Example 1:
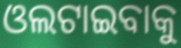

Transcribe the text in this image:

ଓଲଟାଇବାକୁ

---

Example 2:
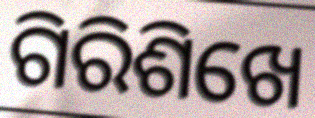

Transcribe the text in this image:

ଗିରିଶିଖେ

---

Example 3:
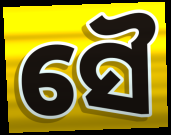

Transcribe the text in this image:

ସୈ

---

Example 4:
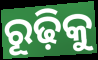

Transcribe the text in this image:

ରୂଢ଼ିକୁ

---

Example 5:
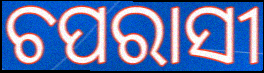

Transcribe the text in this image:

ଚପରାସୀ